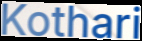
Kothari